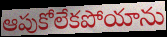
ఆపుకోలేకపోయాను